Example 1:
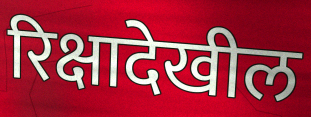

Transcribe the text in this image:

रिक्षादेखील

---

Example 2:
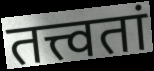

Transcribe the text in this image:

तत्त्वतां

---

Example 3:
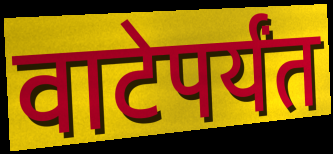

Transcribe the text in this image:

वाटेपर्यंत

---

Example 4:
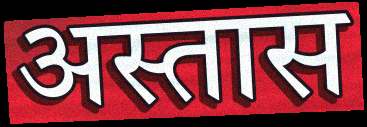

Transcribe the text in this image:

अस्तास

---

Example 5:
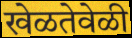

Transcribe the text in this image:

खेळतेवेळी